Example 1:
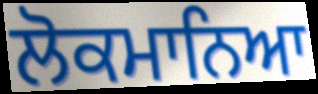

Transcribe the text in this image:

ਲੋਕਮਾਨਿਆ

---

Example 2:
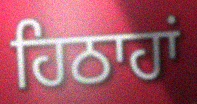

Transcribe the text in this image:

ਹਿਠਾਹਾਂ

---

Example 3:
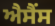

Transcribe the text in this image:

ਐਸੈਂਸ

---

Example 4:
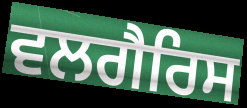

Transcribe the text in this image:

ਵਲਗੈਰਿਸ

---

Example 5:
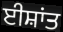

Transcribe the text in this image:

ਈਸ਼ਾਂਤ